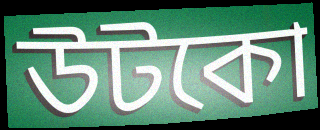
উটকো